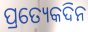
ପ୍ରତ୍ୟେକଦିନ